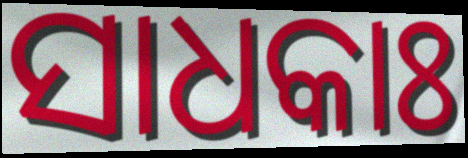
ସାଧକାଃ